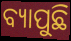
ବ୍ୟାପୁଛି